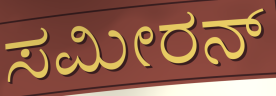
ಸಮೀರನ್